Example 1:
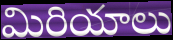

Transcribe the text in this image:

మిరియాలు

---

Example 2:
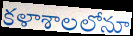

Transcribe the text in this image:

కళాశాలలోనూ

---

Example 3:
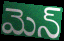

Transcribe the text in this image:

మెన్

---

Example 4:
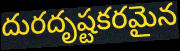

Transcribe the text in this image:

దురదృష్టకరమైన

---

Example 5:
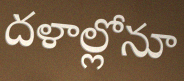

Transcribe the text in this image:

దళాల్లోనూ